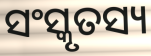
ସଂସ୍କୃତସ୍ୟ